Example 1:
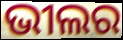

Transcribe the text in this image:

ଭୀଲର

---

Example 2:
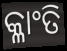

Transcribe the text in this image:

କ୍ଳାଂତି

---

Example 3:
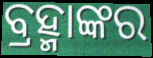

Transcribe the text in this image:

ବ୍ରହ୍ମାଙ୍କର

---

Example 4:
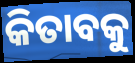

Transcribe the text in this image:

କିତାବକୁ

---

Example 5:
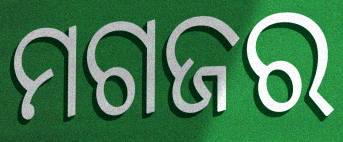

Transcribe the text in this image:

ମଗଜର